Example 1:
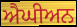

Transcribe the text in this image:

ਐਘੀਅਨ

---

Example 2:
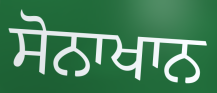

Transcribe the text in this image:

ਸੋਨਾਖਾਨ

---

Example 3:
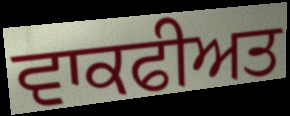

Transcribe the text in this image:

ਵਾਕਫੀਅਤ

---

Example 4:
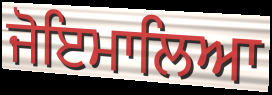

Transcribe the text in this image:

ਜੋਇਮਾਲਿਆ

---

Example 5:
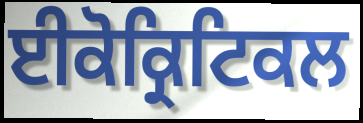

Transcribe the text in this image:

ਈਕੋਕ੍ਰਿਟਿਕਲ